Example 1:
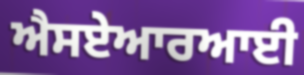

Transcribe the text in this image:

ਐਸਏਆਰਆਈ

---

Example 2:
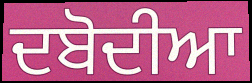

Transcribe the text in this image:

ਦਬੋਦੀਆ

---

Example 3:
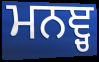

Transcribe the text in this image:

ਮਨਞ੍ਚ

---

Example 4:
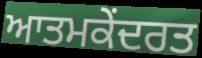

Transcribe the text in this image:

ਆਤਮਕੇਂਦਰਤ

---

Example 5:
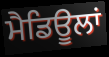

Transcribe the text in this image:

ਮੈਡਿਊਲਾਂ